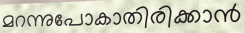
മറന്നുപോകാതിരിക്കാൻ